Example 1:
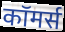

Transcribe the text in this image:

कॉमर्स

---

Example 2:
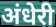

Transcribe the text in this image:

अंधेरी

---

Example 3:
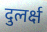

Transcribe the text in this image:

दुलर्क्ष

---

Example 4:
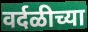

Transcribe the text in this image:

वर्दळीच्या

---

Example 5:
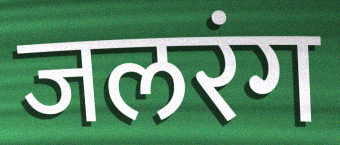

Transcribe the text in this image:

जलरंग